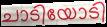
ചാടിയോടി